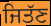
ਜਿਤੱਣ